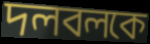
দলবলকে